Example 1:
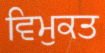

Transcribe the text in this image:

ਵਿਮੁਕਤ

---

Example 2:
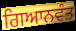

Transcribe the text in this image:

ਗਿਆਨਵੰਤ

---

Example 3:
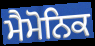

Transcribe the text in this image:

ਮੈਮੋਨਿਕ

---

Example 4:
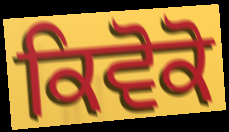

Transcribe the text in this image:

ਕਿਵੋਕੋ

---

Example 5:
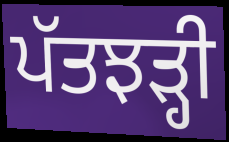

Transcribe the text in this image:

ਪੱਤਝੜ੍ਹੀ